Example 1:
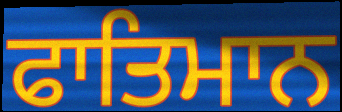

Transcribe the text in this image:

ਫਾਤਿਮਾਨ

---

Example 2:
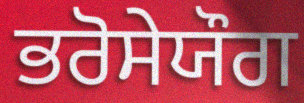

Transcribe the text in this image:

ਭਰੋਸੇਯੌਗ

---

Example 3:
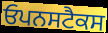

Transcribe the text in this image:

ਓਪਨਸਟੈਕਸ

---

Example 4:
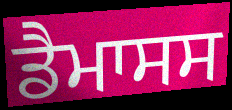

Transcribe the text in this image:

ਡੈਮਾਸਸ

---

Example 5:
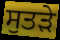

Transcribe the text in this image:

ਸੁਤੜੇ